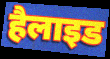
हैलाइड